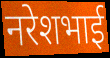
नरेशभाई